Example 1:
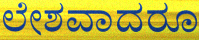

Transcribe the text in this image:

ಲೇಶವಾದರೂ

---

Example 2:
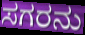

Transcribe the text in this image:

ಸಗರನು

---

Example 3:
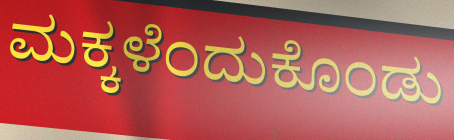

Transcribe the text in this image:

ಮಕ್ಕಳೆಂದುಕೊಂಡು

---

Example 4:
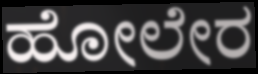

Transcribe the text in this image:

ಹೋಲೇರ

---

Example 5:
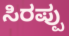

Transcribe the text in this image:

ಸಿರಪ್ಪು